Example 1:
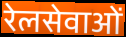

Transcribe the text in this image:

रेलसेवाओं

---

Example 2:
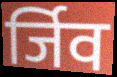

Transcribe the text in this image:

र्जिव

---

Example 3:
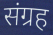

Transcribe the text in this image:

संग्रह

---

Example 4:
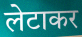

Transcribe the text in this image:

लेटाकर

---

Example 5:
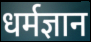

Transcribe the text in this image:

धर्मज्ञान